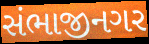
સંભાજીનગર